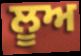
ਲੂਅ